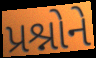
પ્રશ્નોને